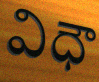
విధౌ